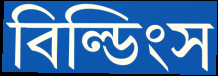
বিল্ডিংস